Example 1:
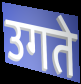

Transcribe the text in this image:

उगते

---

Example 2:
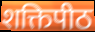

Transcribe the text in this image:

शक्तिपीठ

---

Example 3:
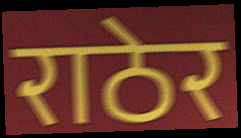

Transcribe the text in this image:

राठेर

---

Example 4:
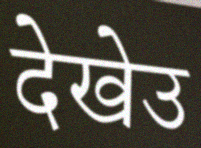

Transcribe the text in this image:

देखेउ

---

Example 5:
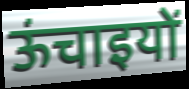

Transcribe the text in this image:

ऊंचाइयों